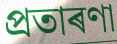
প্ৰতাৰণা